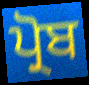
ਪ੍ਰੋਬ